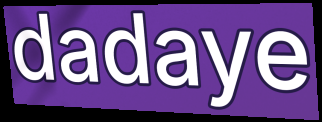
dadaye